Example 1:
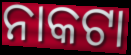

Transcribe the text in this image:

ନାକଟା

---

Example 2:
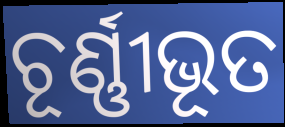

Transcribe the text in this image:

ଚୂର୍ଣ୍ଣୀଭୂତ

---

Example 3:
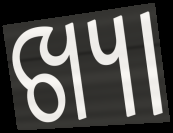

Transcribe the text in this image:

ଖ୍ୟା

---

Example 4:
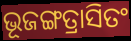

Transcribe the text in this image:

ଭୂଜଙ୍ଗତ୍ରାସିତଂ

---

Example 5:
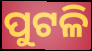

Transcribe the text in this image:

ପୁଟଳି